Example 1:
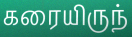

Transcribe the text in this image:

கரையிருந்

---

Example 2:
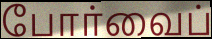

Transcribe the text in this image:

போர்வைப்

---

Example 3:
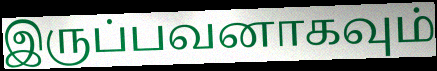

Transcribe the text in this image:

இருப்பவனாகவும்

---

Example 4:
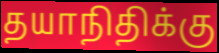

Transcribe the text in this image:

தயாநிதிக்கு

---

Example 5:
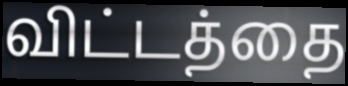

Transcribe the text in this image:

விட்டத்தை